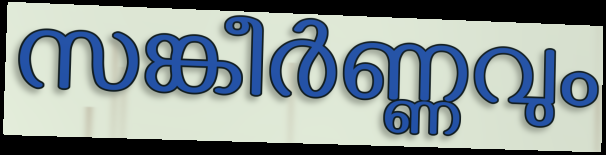
സങ്കീർണ്ണവും